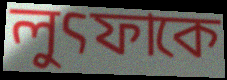
লুৎফাকে